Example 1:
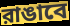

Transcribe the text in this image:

রাঙাবে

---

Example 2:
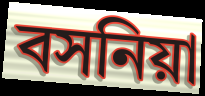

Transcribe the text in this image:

বসনিয়া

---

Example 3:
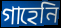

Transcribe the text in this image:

গাহেনি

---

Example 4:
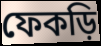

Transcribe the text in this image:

ফেকড়ি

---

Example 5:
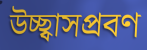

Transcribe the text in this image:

উচ্ছ্বাসপ্রবণ